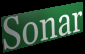
Sonar